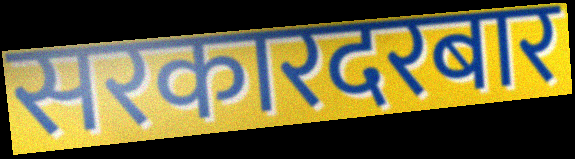
सरकारदरबार